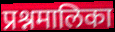
प्रश्नमालिका